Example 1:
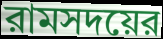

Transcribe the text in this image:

রামসদয়ের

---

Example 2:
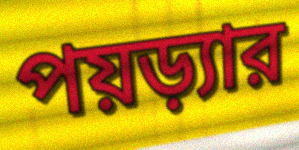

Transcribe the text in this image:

পয়ড়্যার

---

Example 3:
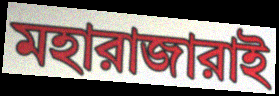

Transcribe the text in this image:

মহারাজারাই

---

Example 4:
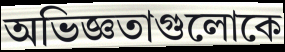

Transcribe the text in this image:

অভিজ্ঞতাগুলোকে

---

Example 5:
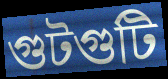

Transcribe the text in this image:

গুটগুটি